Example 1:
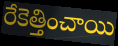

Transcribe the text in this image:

రేకెత్తించాయి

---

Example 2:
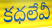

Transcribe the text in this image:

కధలేవీ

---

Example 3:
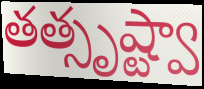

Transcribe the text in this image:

తత్సృష్ట్వా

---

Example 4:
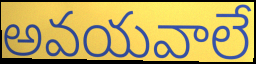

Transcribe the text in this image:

అవయవాలే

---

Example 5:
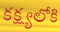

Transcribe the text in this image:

కక్ష్యలోకి